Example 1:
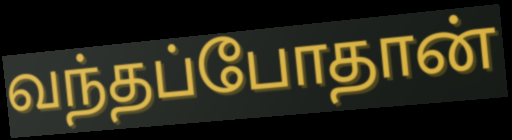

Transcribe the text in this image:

வந்தப்போதான்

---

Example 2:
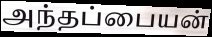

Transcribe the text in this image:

அந்தப்பையன்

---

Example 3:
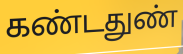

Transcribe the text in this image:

கண்டதுண்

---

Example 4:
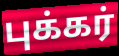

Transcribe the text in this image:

புக்கர்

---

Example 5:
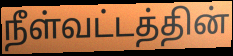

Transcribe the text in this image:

நீள்வட்டத்தின்